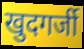
खुदगर्जी